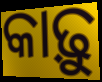
କାଢ଼ୁ